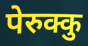
पेरुक्कु